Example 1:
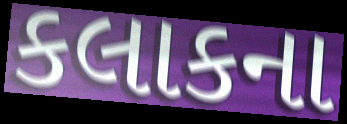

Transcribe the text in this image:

કલાકના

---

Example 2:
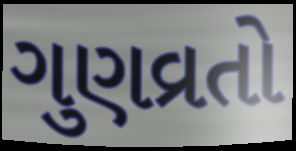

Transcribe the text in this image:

ગુણવ્રતો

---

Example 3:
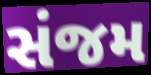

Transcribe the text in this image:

સંજમ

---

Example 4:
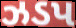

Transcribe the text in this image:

ઝડપ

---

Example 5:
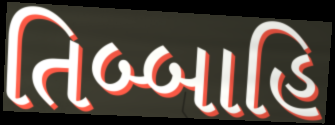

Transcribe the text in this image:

તિબ્બાહિ